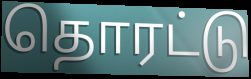
தொரட்டு